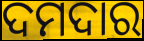
ଦମଦାର